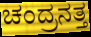
ಚಂದ್ರನತ್ತ